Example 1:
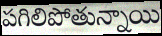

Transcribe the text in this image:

పగిలిపోతున్నాయి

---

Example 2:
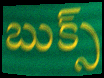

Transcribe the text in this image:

బుక్స్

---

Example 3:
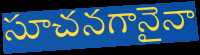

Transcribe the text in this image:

సూచనగానైనా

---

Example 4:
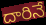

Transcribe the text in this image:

దారినే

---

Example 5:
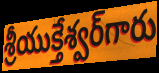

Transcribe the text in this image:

శ్రీయుక్తేశ్వర్‌గారు